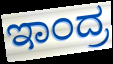
ಇಾಂದ್ರ